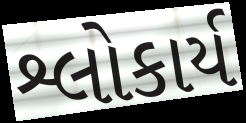
શ્લોકાર્ય